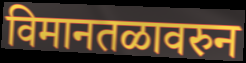
विमानतळावरुन